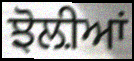
ਝੋਲ਼ੀਆਂ